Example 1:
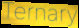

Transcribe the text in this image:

Ternary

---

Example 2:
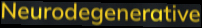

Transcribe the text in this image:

Neurodegenerative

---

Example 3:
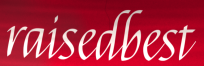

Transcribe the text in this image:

raisedbest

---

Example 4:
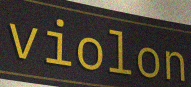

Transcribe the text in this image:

violon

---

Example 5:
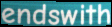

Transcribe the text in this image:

endswith